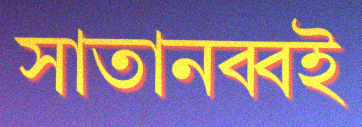
সাতানব্বই